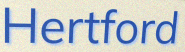
Hertford